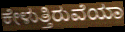
ಕೇಳುತ್ತಿರುವೆಯಾ